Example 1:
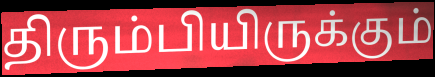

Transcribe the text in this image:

திரும்பியிருக்கும்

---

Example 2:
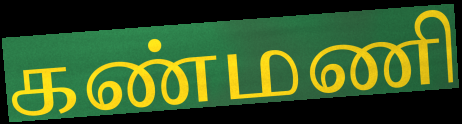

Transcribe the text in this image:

கண்மணி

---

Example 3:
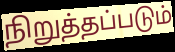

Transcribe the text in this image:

நிறுத்தப்படும்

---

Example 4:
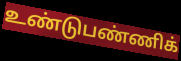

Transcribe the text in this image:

உண்டுபண்ணிக்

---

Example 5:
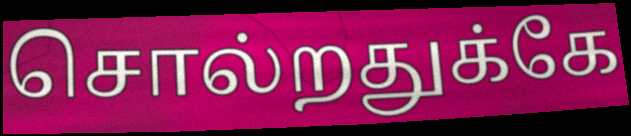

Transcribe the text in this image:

சொல்றதுக்கே